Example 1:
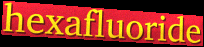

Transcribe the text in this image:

hexafluoride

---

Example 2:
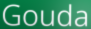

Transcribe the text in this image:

Gouda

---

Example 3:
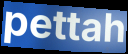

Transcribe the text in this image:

pettah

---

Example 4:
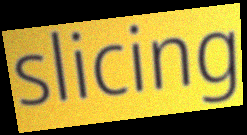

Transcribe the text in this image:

slicing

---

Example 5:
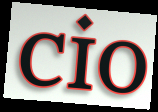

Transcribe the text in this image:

cio